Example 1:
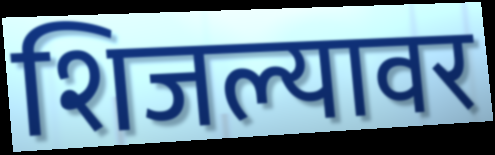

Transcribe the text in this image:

शिजल्यावर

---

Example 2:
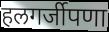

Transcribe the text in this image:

हलगर्जीपणा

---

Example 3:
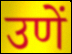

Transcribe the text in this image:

उणें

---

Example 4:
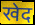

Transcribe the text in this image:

खेद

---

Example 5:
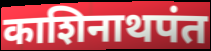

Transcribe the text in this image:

काशिनाथपंत